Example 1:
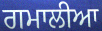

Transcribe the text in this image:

ਗਮਾਲੀਆ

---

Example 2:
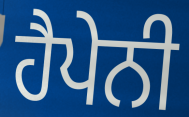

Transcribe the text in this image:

ਹੈਪੇਨੀ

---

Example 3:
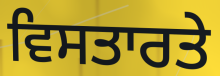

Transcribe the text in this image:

ਵਿਸਤਾਰਤੇ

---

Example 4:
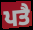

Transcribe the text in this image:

ਪਤੈ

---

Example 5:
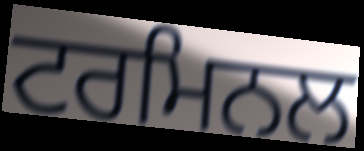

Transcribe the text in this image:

ਟਰਮਿਨਲ